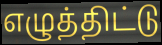
எழுத்திட்டு